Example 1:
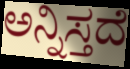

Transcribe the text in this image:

ಅನ್ನಿಸ್ತದೆ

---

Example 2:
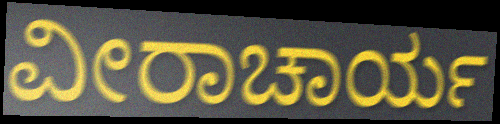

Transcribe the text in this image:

ವೀರಾಚಾರ್ಯ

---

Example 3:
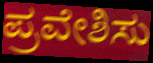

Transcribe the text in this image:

ಪ್ರವೇಶಿಸು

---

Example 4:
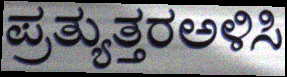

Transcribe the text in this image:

ಪ್ರತ್ಯುತ್ತರಅಳಿಸಿ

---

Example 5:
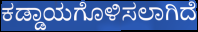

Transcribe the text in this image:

ಕಡ್ಡಾಯಗೊಳಿಸಲಾಗಿದೆ